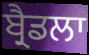
ਬ੍ਰੈਡਲਾ